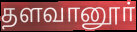
தளவானூர்